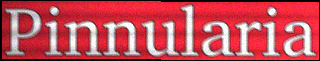
Pinnularia